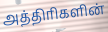
அத்திரிகளின்